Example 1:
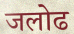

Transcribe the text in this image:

जलोढ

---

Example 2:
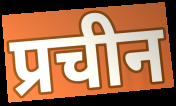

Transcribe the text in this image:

प्रचीन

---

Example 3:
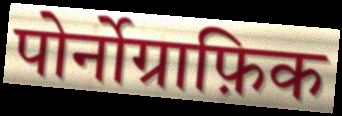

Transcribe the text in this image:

पोर्नोग्राफ़िक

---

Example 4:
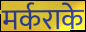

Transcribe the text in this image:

मर्कराके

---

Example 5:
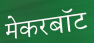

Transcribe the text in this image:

मेकरबॉट